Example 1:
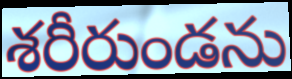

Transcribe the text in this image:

శరీరుండను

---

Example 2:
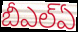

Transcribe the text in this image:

బీఎల్ఏ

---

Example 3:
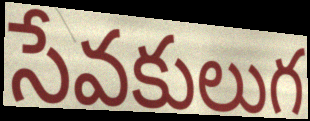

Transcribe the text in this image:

సేవకులుగ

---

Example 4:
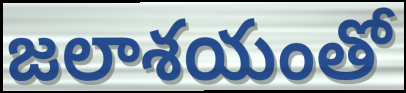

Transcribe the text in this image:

జలాశయంతో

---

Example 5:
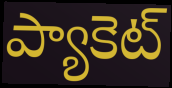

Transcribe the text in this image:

ప్యాకెట్